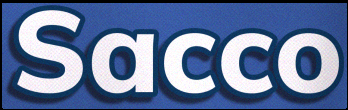
Sacco